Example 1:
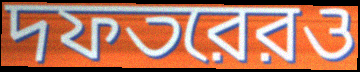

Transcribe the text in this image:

দফতরেরও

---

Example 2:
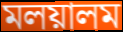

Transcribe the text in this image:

মলয়ালম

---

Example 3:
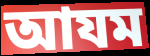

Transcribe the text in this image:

আযম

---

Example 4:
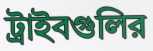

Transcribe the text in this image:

ট্রাইবগুলির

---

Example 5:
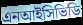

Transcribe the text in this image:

এনআইসিভিডি